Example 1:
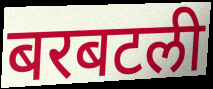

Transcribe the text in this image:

बरबटली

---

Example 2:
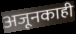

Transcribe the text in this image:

अजूनकाही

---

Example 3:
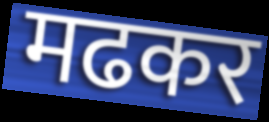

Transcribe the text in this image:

मढकर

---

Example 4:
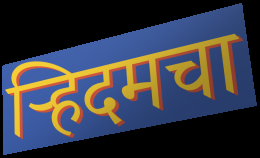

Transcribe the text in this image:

ऱ्हिदमचा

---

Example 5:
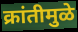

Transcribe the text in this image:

क्रांतीमुळे